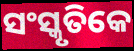
ସଂସ୍କୃତିକେ